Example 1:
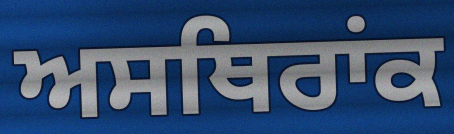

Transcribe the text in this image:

ਅਸਥਿਰਾਂਕ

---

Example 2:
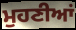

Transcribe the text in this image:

ਮੁਹਣੀਆਂ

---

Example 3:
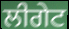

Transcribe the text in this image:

ਲੀਗੇਟ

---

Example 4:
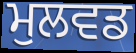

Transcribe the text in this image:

ਮੁਲਵਡ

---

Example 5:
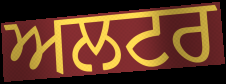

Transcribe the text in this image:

ਅਲਟਰ